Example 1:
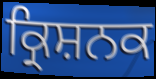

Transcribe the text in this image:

ਕ੍ਰਿਸ਼ਨਕ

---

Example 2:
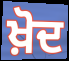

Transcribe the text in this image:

ਖ਼ੋਦ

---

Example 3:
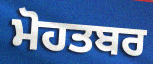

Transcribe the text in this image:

ਮੋਹਤਬਰ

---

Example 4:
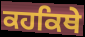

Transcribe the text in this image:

ਕਹਕਿਥੇ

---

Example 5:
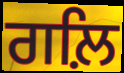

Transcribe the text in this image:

ਗਲ਼ਿ